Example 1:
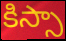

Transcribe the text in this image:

కిస్సా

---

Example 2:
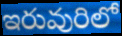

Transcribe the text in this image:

ఇరువురిలో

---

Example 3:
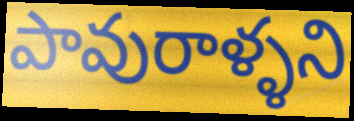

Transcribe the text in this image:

పావురాళ్ళని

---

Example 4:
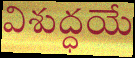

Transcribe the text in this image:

విశుద్ధయే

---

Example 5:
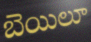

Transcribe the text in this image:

బెయిలూ